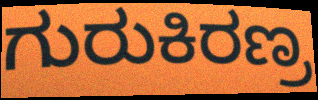
ಗುರುಕಿರಣ್ರ